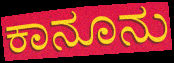
ಕಾನೂನು